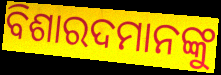
ବିଶାରଦମାନଙ୍କୁ